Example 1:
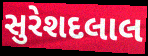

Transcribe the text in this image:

સુરેશદલાલ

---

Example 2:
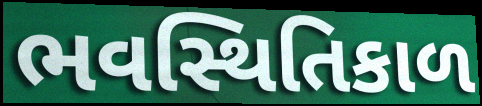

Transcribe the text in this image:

ભવસ્થિતિકાળ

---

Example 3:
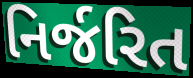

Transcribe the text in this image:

નિર્જરિત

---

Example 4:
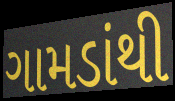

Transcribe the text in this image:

ગામડાંથી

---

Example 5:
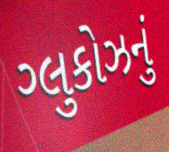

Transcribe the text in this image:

ગ્લુકોઝનું